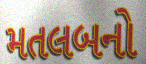
મતલબનો